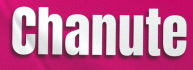
Chanute